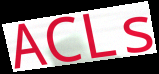
ACLs